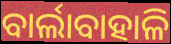
ବାର୍ଲାବାହାଳି